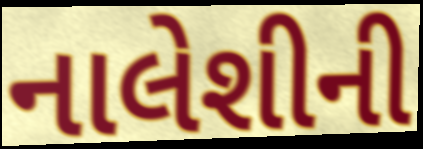
નાલેશીની